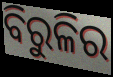
ବିରୁଳିର